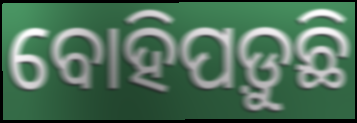
ବୋହିପଡ଼ୁଛି